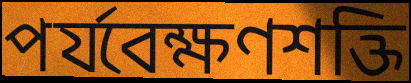
পর্যবেক্ষণশক্তি